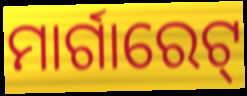
ମାର୍ଗାରେଟ୍